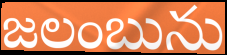
జలంబును